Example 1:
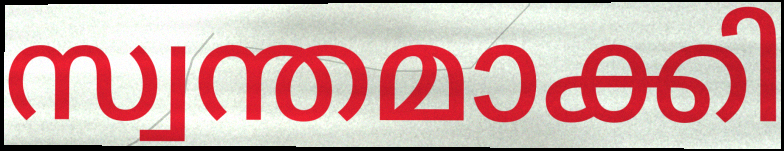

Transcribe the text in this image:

സ്വന്തമാക്കി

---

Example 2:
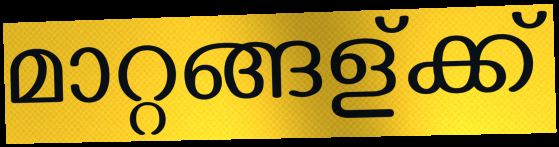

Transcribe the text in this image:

മാറ്റങ്ങള്ക്ക്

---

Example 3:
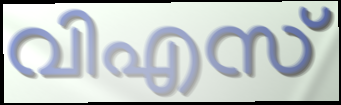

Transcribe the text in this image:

വിഎസ്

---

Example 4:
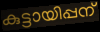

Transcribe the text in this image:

കുട്ടായിപ്പന്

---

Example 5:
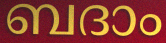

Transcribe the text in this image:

ബദാം